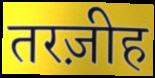
तरज़ीह